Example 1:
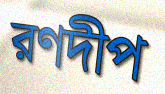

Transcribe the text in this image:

রণদীপ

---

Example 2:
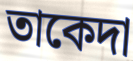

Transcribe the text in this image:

তাকেদা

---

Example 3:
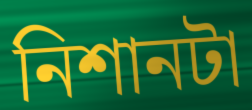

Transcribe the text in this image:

নিশানটা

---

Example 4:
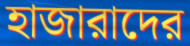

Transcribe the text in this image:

হাজারাদের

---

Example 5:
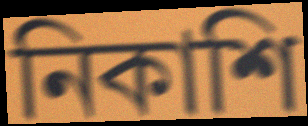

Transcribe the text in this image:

নিকাশি